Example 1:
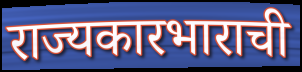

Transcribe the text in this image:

राज्यकारभाराची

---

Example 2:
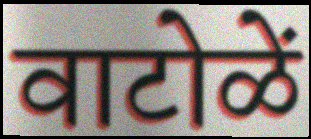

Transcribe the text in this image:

वाटोळें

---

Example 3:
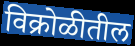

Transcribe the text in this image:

विक्रोळीतील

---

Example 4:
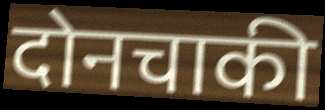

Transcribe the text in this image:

दोनचाकी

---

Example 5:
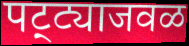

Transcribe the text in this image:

पट्ट्याजवळ